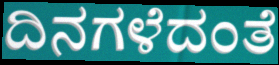
ದಿನಗಳೆದಂತೆ